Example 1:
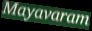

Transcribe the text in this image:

Mayavaram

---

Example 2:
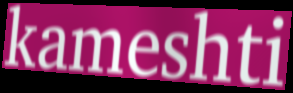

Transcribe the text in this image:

kameshti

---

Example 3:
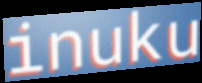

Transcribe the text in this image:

inuku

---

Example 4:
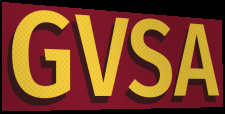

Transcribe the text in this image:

GVSA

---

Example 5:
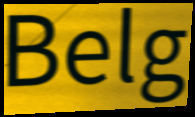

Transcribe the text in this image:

Belg